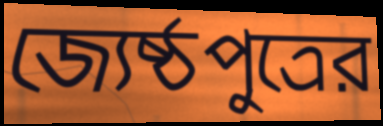
জ্যেষ্ঠপুত্রের